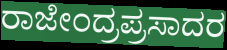
ರಾಜೇಂದ್ರಪ್ರಸಾದರ